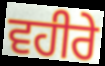
ਵਹੀਰੇ